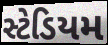
સ્ટેડિયમ